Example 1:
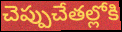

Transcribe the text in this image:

చెప్పుచేతల్లోకి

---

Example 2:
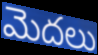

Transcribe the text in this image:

మెదలు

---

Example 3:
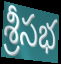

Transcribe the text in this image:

శ్రీసభ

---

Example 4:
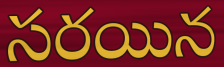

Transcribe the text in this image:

సరయిన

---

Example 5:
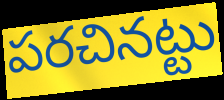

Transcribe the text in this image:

పరచినట్టు